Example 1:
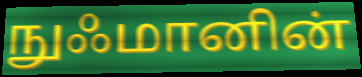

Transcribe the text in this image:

நுஃமானின்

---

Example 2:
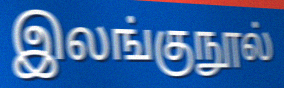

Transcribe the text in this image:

இலங்குநூல்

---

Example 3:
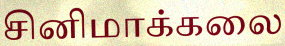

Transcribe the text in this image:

சினிமாக்கலை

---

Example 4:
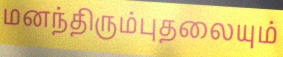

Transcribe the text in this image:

மனந்திரும்புதலையும்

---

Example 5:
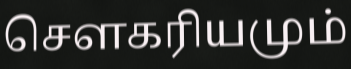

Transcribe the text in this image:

சௌகரியமும்